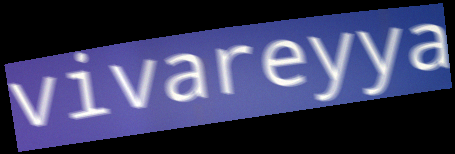
vivareyya